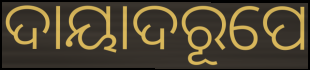
ଦାୟାଦରୂପେ